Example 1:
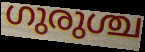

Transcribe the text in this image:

ഗുരുശ്ച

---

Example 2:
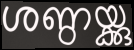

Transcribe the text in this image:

ശണ്ഠയ്ക്കു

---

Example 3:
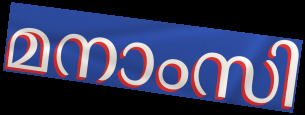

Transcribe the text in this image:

മനാംസി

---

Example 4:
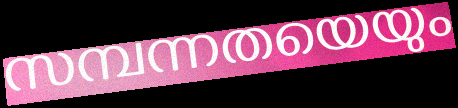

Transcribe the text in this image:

സമ്പന്നതയെയും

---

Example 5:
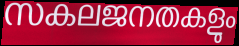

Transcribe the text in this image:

സകലജനതകളും